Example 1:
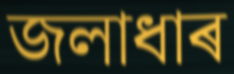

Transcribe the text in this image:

জলাধাৰ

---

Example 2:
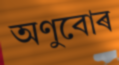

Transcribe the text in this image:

অণুবোৰ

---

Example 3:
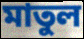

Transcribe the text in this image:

মাতুল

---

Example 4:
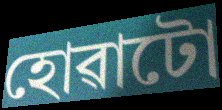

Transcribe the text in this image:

হোৱাটো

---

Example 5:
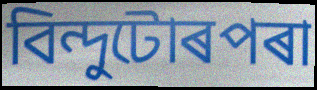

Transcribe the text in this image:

বিন্দুটোৰপৰা